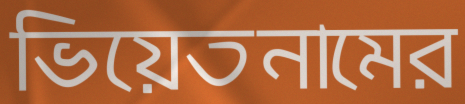
ভিয়েতনামের